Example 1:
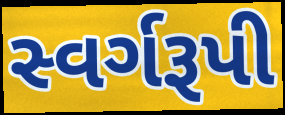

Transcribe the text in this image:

સ્વર્ગરૂપી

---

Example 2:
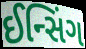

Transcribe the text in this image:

ઈન્સિંગ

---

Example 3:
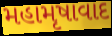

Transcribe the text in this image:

મહામૃષાવાદ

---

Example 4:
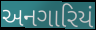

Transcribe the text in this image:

અનગારિયં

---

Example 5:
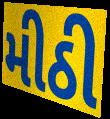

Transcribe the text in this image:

મીઠી